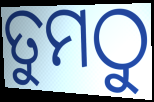
ତୁମଠୁ